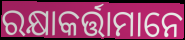
ରକ୍ଷାକର୍ତ୍ତାମାନେ